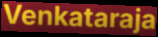
Venkataraja